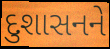
દુશાસનને